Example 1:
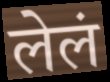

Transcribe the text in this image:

लेलं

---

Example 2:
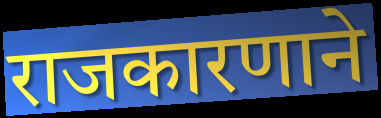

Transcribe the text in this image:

राजकारणाने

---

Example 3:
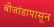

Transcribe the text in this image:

बीजांडापासून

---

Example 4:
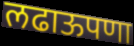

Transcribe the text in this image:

लढाऊपणा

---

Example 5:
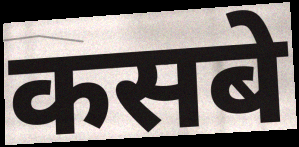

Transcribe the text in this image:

कसबे